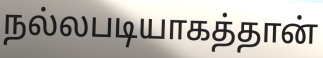
நல்லபடியாகத்தான்